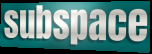
subspace